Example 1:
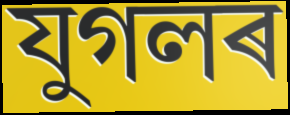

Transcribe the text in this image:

যুগলৰ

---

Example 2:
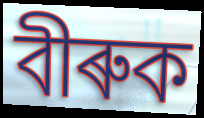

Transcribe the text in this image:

বীৰুক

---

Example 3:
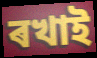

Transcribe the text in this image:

ৰখাই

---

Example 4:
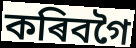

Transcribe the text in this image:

কৰিবগৈ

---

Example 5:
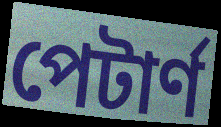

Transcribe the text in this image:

পেটাৰ্ণ